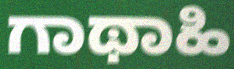
ಗಾಥಾಹಿ